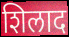
शिलाद